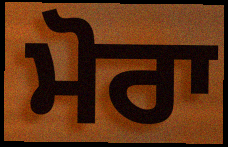
ਮੋਰਾ